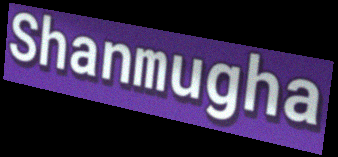
Shanmugha